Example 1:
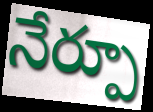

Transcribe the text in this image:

నేర్పూ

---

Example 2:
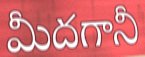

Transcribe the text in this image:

మీదగానీ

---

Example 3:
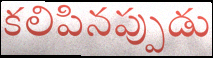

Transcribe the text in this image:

కలిపినప్పుడు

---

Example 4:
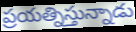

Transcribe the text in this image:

ప్రయత్నిస్తున్నాడు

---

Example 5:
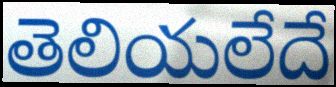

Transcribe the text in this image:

తెలియలేదే